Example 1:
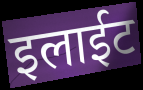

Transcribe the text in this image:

इलाईट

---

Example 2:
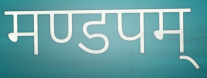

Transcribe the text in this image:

मण्डपम्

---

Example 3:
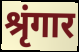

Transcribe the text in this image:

श्रृंगार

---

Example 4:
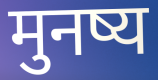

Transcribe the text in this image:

मुनष्य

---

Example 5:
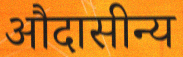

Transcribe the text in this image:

औदासीन्य